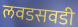
लवडसवडी